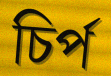
চির্প